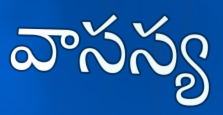
వాసస్య